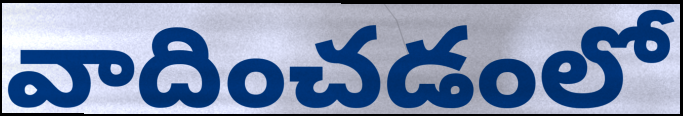
వాదించడంలో